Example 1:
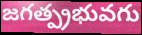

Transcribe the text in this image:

జగత్ప్రభువగు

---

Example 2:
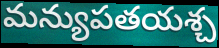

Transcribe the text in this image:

మన్యుపతయశ్చ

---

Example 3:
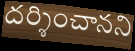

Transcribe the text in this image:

దర్శించానని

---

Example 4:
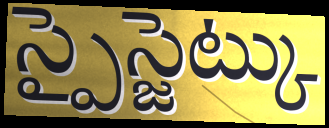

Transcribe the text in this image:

స్పైస్జెట్కు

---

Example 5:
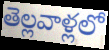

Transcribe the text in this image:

తెల్లవాళ్లలో